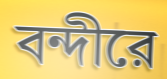
বন্দীরে